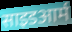
साइडआर्म